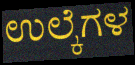
ಉಲ್ಕೆಗಳ